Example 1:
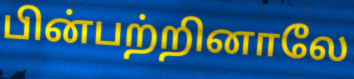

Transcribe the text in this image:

பின்பற்றினாலே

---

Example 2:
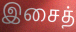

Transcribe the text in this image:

இசைத்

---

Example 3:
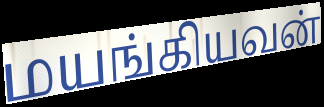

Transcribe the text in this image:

மயங்கியவன்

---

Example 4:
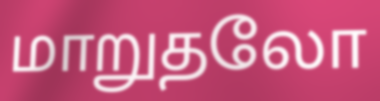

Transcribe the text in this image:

மாறுதலோ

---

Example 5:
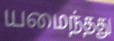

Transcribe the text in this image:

யமைந்தது